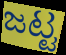
ಜಟ್ಟ